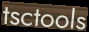
tsctools